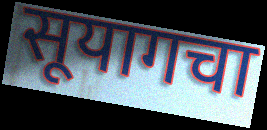
सूयागचा